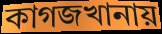
কাগজখানায়